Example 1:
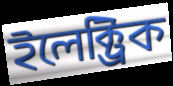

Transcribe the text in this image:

ইলেক্ট্ৰিক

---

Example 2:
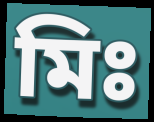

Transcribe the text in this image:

মিঃ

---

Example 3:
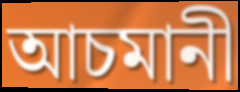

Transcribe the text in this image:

আচমানী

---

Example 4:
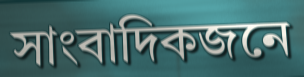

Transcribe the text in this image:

সাংবাদিকজনে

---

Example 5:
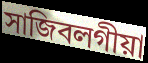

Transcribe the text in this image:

সাজিবলগীয়া